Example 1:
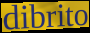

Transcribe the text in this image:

dibrito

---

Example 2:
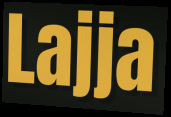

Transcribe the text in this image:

Lajja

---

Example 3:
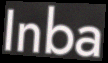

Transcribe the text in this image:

Inba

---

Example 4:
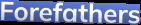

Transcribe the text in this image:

Forefathers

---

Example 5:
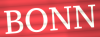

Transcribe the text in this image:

BONN